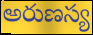
అరుణస్య